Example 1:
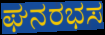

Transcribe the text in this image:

ಘನರಭಸ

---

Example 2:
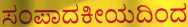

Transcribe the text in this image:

ಸಂಪಾದಕೀಯದಿಂದ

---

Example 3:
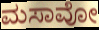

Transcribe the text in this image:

ಮಸಾವೋ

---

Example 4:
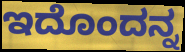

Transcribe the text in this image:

ಇದೊಂದನ್ನ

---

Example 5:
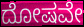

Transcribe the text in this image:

ದೋಷವೇ